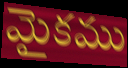
మైకము